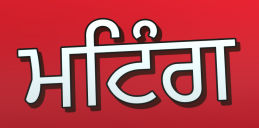
ਮਟਿੰਗ